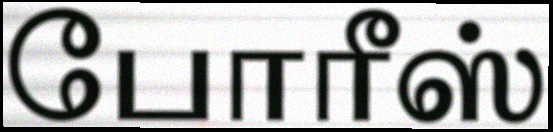
போரீஸ்